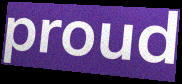
proud